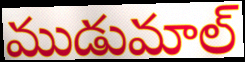
ముడుమాల్